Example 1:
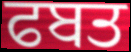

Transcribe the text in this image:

ਫਬਤ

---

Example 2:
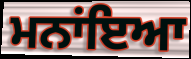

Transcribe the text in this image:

ਮਨਾਂਇਆ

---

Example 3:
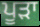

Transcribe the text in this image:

ਪੂੜਾ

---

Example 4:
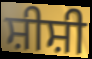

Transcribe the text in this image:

ਸ਼ੀਸ਼ੀ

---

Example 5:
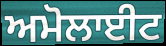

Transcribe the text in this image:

ਅਮੋਲਾਈਟ